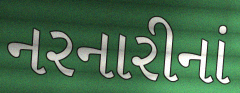
નરનારીનાં